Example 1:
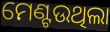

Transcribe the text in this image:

ମେଣ୍ଟଉଥିଲା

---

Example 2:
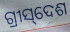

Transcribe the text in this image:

ଗ୍ରୀସ୍‌ଦେଶ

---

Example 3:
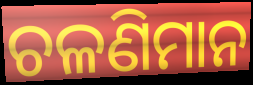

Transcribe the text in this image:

ଚଳଣିମାନ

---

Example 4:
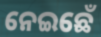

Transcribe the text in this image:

ନେଇଛେଁ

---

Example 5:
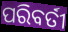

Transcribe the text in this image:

ପରିବର୍ତୀ